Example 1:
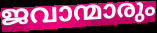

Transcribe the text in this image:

ജവാന്മാരും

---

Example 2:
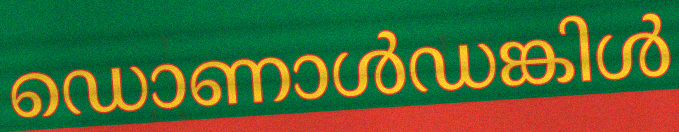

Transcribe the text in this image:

ഡൊണാൾഡങ്കിൾ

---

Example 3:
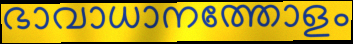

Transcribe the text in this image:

ഭാവാധാനത്തോളം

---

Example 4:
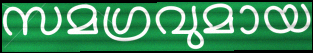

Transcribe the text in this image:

സമഗ്രവുമായ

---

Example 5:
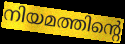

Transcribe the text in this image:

നിയമത്തിന്റെ